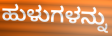
ಹುಳುಗಳನ್ನು